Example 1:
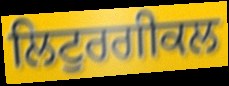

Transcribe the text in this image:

ਲਿਟੁਰਗੀਕਲ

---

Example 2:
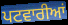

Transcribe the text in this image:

ਪਟਵਾਰੀਆਂ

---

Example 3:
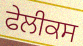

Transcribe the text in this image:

ਫੇਲੀਕਸ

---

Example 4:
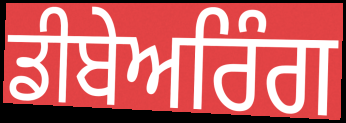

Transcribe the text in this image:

ਡੀਬੇਅਰਿੰਗ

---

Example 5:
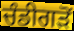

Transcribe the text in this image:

ਚੰਡੀਗੜੋਂ